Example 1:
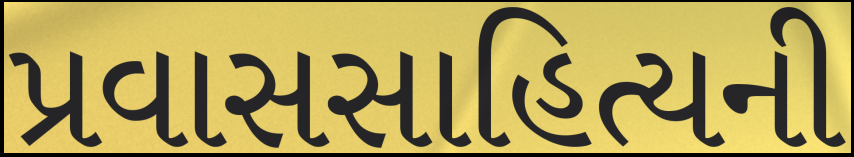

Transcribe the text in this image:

પ્રવાસસાહિત્યની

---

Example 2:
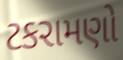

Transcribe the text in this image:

ટકરામણો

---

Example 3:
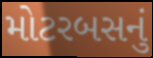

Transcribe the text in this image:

મોટરબસનું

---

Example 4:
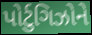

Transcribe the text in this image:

પોર્ટુગિઝોને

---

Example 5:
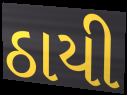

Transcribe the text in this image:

ઠાયી